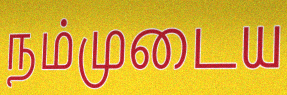
நம்முடைய